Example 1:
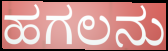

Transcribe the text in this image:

ಹಗಲನು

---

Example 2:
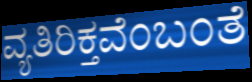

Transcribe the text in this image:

ವ್ಯತಿರಿಕ್ತವೆಂಬಂತೆ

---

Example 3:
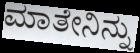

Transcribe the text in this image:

ಮಾತೇನಿನ್ನು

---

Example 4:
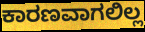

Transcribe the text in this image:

ಕಾರಣವಾಗಲಿಲ್ಲ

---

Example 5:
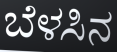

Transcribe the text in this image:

ಬೆಳಸಿನ